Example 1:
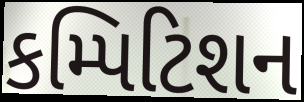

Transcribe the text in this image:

કમ્પિટિશન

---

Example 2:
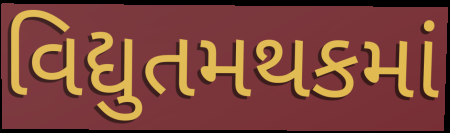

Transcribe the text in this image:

વિદ્યુતમથકમાં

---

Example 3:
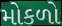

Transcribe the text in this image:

મોકળો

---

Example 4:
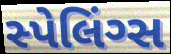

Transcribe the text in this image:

સ્પેલિંગ્સ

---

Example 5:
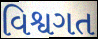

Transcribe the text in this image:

વિશ્વગત